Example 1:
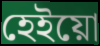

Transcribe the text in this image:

হেইয়ো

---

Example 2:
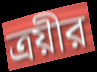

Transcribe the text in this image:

ত্রয়ীর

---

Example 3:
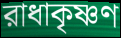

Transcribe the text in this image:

রাধাকৃষ্ণণ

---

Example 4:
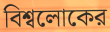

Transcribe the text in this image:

বিশ্বলোকের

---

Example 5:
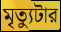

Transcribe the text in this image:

মৃত্যুটার